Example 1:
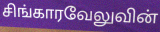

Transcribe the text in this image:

சிங்காரவேலுவின்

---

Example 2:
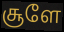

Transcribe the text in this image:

சூளே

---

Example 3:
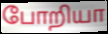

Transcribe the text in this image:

போறியா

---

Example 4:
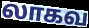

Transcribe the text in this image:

லாகவ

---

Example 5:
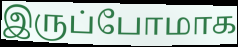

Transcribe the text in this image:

இருப்போமாக